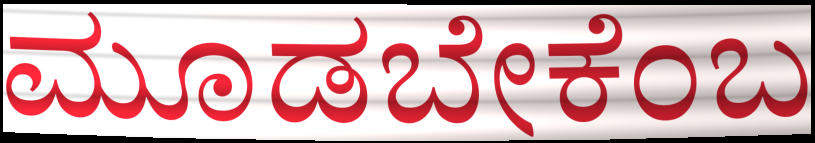
ಮೂಡಬೇಕೆಂಬ